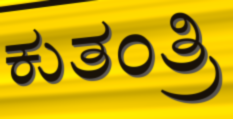
ಕುತಂತ್ರಿ